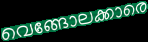
വെങ്ങോലക്കാരെ